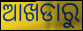
ଆଖଡାରୁ